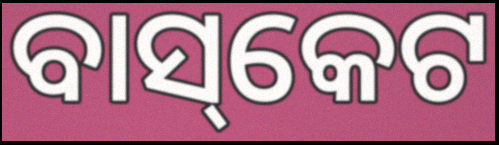
ବାସ୍‌କେଟ